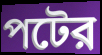
পটের